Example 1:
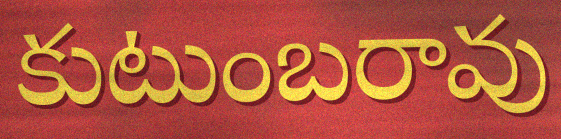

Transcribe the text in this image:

కుటుంబరావు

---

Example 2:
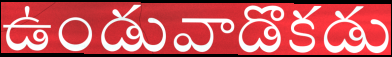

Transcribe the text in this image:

ఉండువాడొకడు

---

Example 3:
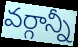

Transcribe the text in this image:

వర్గాన్నీ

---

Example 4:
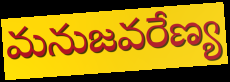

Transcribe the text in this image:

మనుజవరేణ్య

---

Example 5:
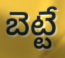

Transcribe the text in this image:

బెట్టే